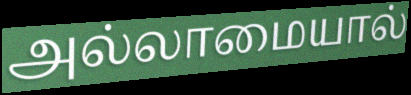
அல்லாமையால்